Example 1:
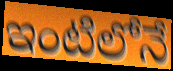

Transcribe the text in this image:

ఇంటిలోనే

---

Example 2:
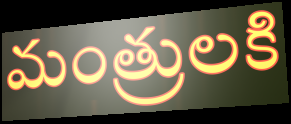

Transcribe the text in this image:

మంత్రులకి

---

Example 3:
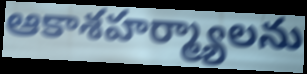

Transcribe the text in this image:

ఆకాశహర్మ్యాలను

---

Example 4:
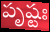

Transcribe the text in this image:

పృష్టః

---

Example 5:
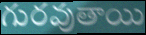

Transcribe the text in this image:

గురవుతాయి